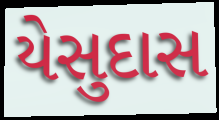
યેસુદાસ